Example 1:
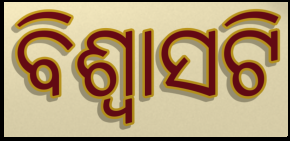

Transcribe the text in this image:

ବିଶ୍ୱାସଟି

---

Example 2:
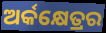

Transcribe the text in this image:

ଅର୍କକ୍ଷେତ୍ରର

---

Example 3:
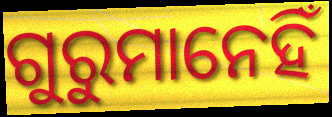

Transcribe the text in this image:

ଗୁରୁମାନେହିଁ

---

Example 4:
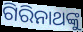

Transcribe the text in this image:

ଗିରିନାଥଙ୍କୁ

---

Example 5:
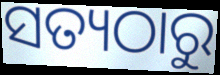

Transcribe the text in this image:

ସତ୍ୟଠାରୁ